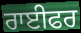
ਰਾਈਫਰ